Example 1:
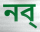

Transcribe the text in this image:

নব্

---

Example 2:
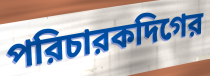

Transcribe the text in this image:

পরিচারকদিগের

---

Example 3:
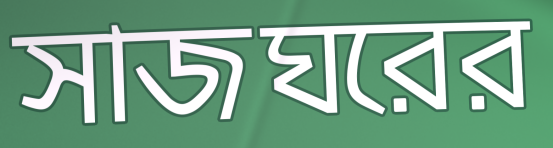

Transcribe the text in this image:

সাজঘরের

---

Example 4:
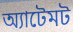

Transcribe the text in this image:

অ্যাটেমট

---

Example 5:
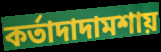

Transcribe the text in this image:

কর্তাদাদামশায়